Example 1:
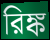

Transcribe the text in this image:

রিঙ্ক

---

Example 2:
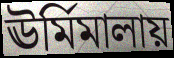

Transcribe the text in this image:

ঊর্মিমালায়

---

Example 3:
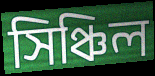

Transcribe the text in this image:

সিঞ্চিল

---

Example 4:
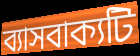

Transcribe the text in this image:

ব্যাসবাক্যটি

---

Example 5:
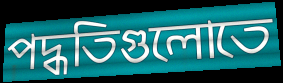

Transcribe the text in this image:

পদ্ধতিগুলোতে